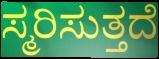
ಸ್ಮರಿಸುತ್ತದೆ